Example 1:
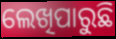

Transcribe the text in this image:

ଲେଖିପାରୁଛି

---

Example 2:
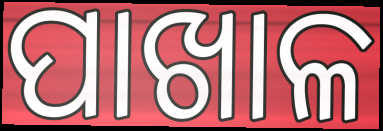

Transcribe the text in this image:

ପାଖାଳ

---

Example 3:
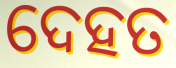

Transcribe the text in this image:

ଦେହତ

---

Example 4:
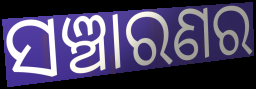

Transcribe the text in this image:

ସଞ୍ଚାରଣର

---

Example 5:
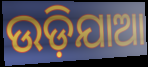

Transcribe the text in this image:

ଉଡ଼ିଯାଆ